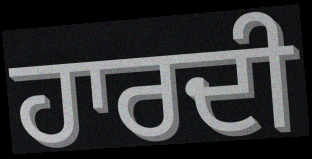
ਹਾਰਦੀ